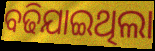
ବଢିଯାଇଥିଲା